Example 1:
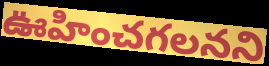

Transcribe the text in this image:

ఊహించగలనని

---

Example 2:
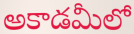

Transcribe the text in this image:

అకాడమీలో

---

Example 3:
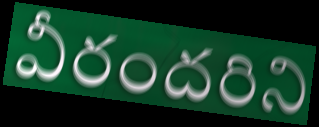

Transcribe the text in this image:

వీరందరిని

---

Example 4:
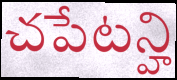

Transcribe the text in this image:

చపేటన్హి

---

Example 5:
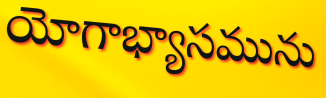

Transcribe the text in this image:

యోగాభ్యాసమును